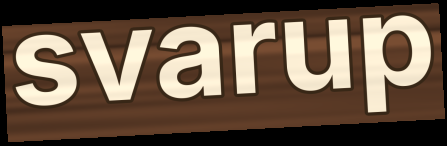
svarup